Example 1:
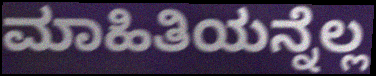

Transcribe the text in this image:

ಮಾಹಿತಿಯನ್ನೆಲ್ಲ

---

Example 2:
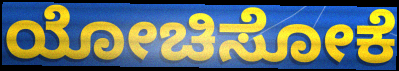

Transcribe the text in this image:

ಯೋಚಿಸೋಕೆ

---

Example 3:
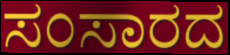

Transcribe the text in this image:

ಸಂಸಾರದ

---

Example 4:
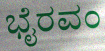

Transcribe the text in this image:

ಭೈರವಂ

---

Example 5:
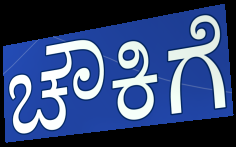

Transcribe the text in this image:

ಚೌಕಿಗೆ